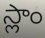
స్లాం